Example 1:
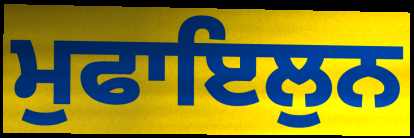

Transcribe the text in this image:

ਮੁਫਾਇਲੁਨ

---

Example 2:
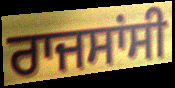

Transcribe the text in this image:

ਰਾਜਸਾਂਸੀ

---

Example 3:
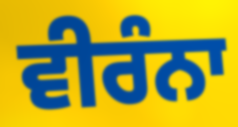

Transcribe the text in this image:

ਵੀਰੰਨਾ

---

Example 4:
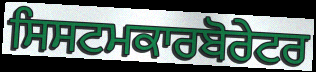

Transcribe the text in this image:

ਸਿਸਟਮਕਾਰਬੋਰੇਟਰ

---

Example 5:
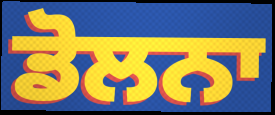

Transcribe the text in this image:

ਡੋਲਨਾ